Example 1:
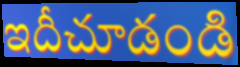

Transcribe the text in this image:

ఇదీచూడండి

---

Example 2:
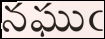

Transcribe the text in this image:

నఘుఁ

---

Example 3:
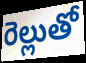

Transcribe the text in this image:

రెల్లుతో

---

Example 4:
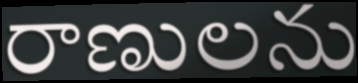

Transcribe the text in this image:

రాణులను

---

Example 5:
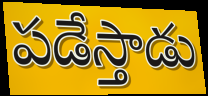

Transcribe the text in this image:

పడేస్తాడు